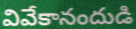
వివేకానందుడి